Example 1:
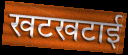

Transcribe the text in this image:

खटखटाई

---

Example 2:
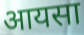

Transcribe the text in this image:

आयसा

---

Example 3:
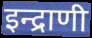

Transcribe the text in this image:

इन्द्राणी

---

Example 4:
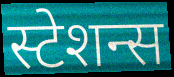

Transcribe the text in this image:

स्टेशन्स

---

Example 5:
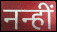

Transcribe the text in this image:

नन्‍हीं